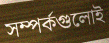
সম্পর্কগুলোই